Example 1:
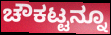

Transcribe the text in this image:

ಚೌಕಟ್ಟನ್ನೂ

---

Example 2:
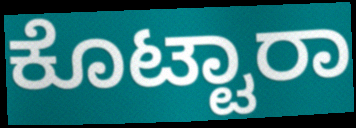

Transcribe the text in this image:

ಕೊಟ್ಟಾರಾ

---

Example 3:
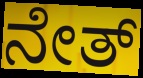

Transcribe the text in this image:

ನೇತ್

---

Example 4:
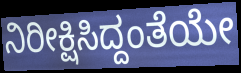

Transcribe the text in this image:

ನಿರೀಕ್ಷಿಸಿದ್ದಂತೆಯೇ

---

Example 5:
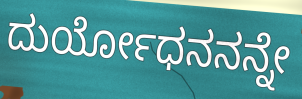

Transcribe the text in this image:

ದುರ್ಯೋಧನನನ್ನೇ